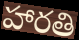
హారతి